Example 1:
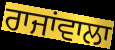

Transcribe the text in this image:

ਰਾਜਾਂਵਾਲਾ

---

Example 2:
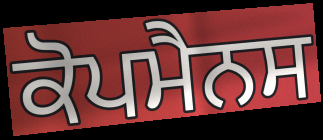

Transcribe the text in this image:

ਕੋਪਮੈਨਸ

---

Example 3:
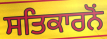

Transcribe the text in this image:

ਸਤਿਕਾਰਨੋਂ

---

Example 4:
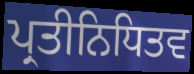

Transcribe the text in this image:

ਪ੍ਰਤੀਨਿਧਿਤਵ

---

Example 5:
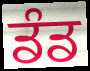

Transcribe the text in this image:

ਡੰਡ